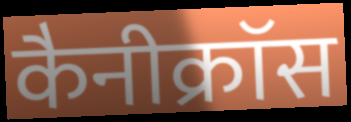
कैनीक्रॉस